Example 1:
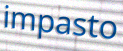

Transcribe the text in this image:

impasto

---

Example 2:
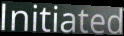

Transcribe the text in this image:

Initiated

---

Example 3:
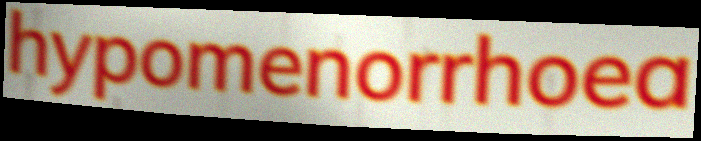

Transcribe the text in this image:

hypomenorrhoea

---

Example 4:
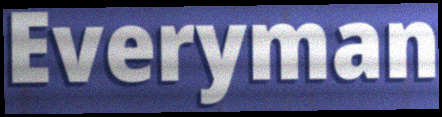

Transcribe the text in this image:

Everyman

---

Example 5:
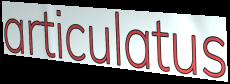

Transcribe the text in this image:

articulatus